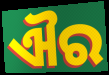
ଐର